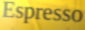
Espresso